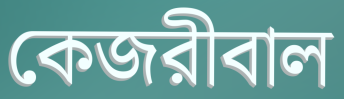
কেজরীবাল